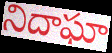
నిదాఘా